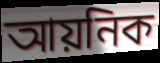
আয়নিক